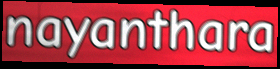
nayanthara